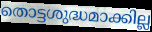
തൊട്ടശുദ്ധമാക്കില്ല